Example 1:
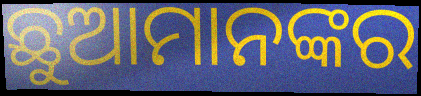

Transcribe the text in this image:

ଛୁଆମାନଙ୍କର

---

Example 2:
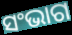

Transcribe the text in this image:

ସଂଭାଗ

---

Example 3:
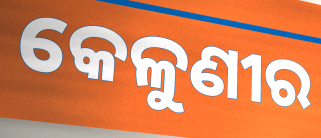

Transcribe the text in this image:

କେଳୁଣୀର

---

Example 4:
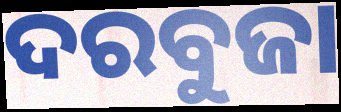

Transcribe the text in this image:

ଦରବୁଜା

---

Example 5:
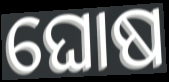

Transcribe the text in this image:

ଘୋଷ